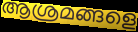
ആശ്രമങ്ങളെ